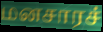
மனசாரச்